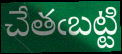
చేతఁబట్టి